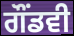
ਗੌਂਡਵੀ